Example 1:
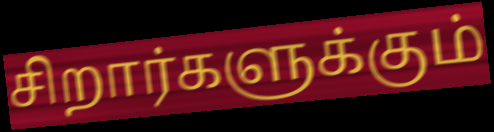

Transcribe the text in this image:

சிறார்களுக்கும்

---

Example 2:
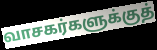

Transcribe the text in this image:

வாசகர்களுக்குத்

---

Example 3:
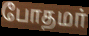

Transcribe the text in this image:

போதமர்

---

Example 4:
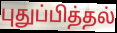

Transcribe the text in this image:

புதுப்பித்தல்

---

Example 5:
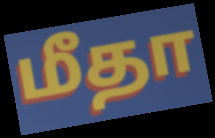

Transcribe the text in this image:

மீதா